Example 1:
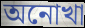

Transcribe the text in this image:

অনোখা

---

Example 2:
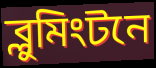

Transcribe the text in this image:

ব্লুমিংটনে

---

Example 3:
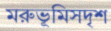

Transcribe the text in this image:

মরুভূমিসদৃশ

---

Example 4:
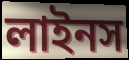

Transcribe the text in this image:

লাইনস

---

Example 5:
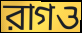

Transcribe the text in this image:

রাগও